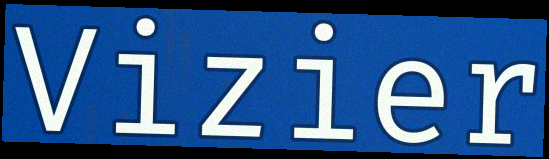
Vizier